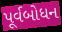
પૂર્વબોધન